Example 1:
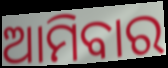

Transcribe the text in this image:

ଆମିବାର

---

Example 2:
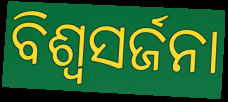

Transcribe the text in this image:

ବିଶ୍ଵସର୍ଜନା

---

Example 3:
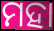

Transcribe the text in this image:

ମହା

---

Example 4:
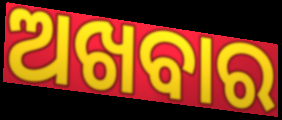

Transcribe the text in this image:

ଅଖବାର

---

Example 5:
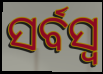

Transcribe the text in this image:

ସର୍ବସ୍ୱ